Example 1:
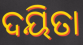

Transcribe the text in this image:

ଦୟିତା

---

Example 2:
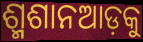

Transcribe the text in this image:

ଶ୍ମଶାନଆଡ଼କୁ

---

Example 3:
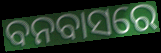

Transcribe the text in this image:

ବନବାସରେ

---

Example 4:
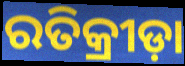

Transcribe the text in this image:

ରତିକ୍ରୀଡ଼ା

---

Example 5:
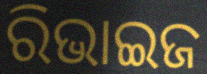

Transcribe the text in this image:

ରିଭାଇଜ